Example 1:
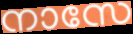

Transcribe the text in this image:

നാസേ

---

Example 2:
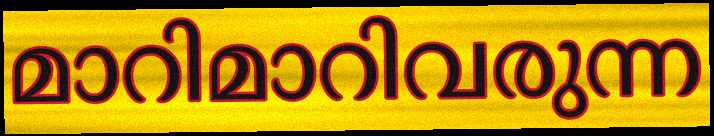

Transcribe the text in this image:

മാറിമാറിവരുന്ന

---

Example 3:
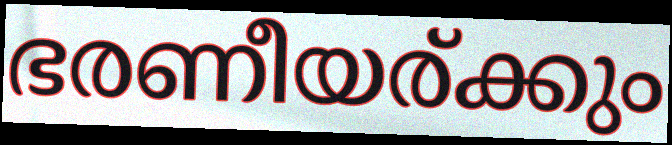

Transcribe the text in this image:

ഭരണീയര്ക്കും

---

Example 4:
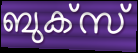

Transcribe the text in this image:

ബുക്സ്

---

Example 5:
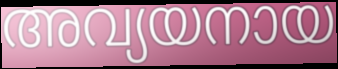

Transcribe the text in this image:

അവ്യയനായ